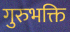
गुरुभक्ति